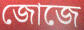
জোজে